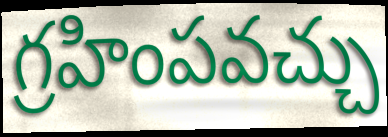
గ్రహింపవచ్చు